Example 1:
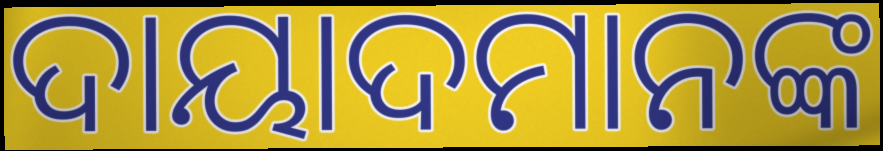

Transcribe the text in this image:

ଦାୟାଦମାନଙ୍କ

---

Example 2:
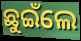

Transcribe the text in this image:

ଛୁଇଁଲେ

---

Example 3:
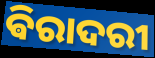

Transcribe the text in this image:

ଵିରାଦରୀ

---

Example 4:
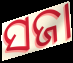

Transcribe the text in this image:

ସଜା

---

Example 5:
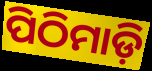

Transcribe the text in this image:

ପିଠିମାଡ଼ି